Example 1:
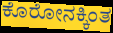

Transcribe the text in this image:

ಕೊರೋನಕ್ಕಿಂತ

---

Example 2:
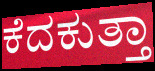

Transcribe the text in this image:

ಕೆದಕುತ್ತಾ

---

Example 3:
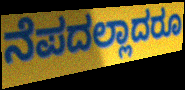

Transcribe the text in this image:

ನೆಪದಲ್ಲಾದರೂ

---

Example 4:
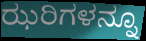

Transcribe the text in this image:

ಝರಿಗಳನ್ನೂ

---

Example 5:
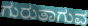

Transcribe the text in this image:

ಗುರುತಾಗುವ